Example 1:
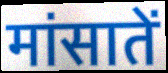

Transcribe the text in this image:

मांसातें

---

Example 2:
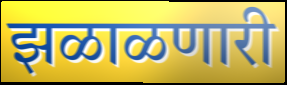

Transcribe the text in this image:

झळाळणारी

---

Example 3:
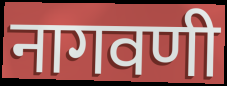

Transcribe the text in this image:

नागवणी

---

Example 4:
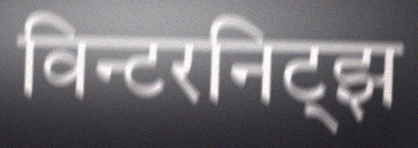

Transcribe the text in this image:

विन्टरनिट्झ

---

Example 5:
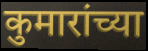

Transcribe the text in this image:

कुमारांच्या